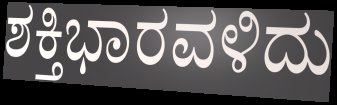
ಶಕ್ತಿಭಾರವಳಿದು